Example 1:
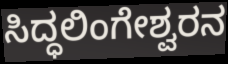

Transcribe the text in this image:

ಸಿದ್ಧಲಿಂಗೇಶ್ವರನ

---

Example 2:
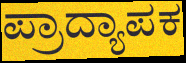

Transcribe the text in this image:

ಪ್ರಾದ್ಯಾಪಕ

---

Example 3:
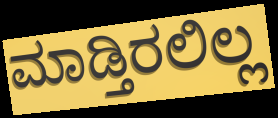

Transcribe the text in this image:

ಮಾಡ್ತಿರಲಿಲ್ಲ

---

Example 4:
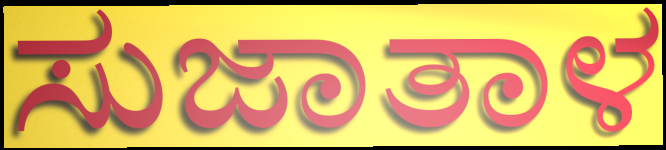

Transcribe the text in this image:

ಸುಜಾತಾಳ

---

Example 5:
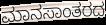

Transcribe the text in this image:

ಮಾನಸಾಂತರದ